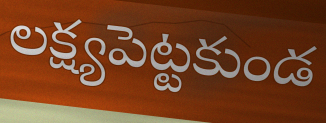
లక్ష్యపెట్టకుండ